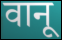
वानू